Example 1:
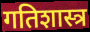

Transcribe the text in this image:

गतिशास्त्र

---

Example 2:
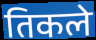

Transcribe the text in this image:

तिकले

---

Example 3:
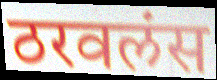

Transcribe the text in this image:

ठरवलंस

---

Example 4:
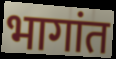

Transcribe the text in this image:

भागांत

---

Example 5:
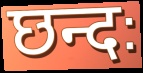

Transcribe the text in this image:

छन्दः